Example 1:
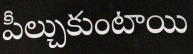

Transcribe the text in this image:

పీల్చుకుంటాయి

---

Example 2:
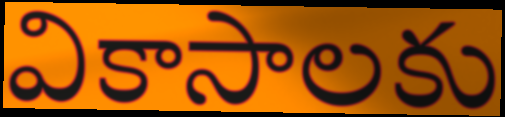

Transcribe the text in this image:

వికాసాలకు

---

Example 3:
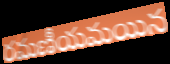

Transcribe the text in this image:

రమణీయమయిన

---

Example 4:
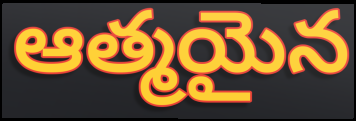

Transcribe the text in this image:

ఆత్మయైన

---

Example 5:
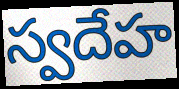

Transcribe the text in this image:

స్వదేహ